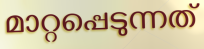
മാറ്റപ്പെടുന്നത്